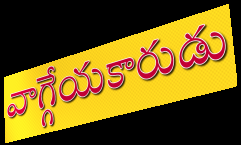
వాగ్గేయకారుడు